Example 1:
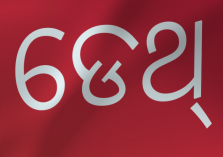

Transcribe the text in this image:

ଡେଥ୍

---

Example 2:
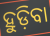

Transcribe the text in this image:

ହୁଡ଼ିବା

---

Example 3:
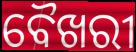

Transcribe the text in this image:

ବୈଖରୀ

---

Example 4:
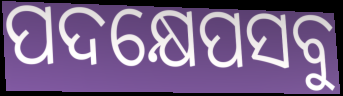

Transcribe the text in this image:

ପଦକ୍ଷେପସବୁ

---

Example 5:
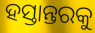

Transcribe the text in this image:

ହସ୍ତାନ୍ତରକୁ